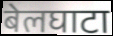
बेलघाटा